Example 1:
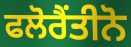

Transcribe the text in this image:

ਫਲੋਰੈਂਤੀਨੋ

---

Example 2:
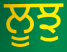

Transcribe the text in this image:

ਲੂਝੁ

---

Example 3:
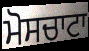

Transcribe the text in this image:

ਮੋਸਚਾਟਾ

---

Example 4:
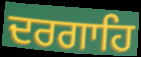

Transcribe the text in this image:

ਦਰਗਾਹਿ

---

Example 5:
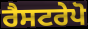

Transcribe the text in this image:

ਰੈਸਟਰੇਪੋ